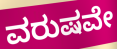
ವರುಷವೇ